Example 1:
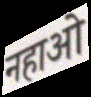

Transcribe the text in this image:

नहाओ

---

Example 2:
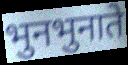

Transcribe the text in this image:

भुनभुनाते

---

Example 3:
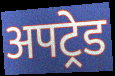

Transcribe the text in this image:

अपट्रेड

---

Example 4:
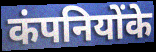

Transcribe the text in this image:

कंपनियोंके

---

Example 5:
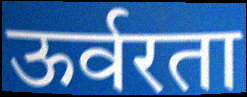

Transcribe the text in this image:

ऊर्वरता